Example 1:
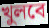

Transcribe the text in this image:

খুলবে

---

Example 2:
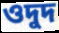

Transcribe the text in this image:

ওদুদ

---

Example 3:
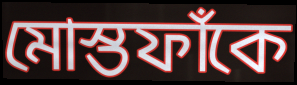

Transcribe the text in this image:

মোস্তফাঁকে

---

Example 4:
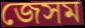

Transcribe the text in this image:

জেসম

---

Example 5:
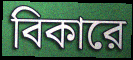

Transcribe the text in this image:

বিকারে